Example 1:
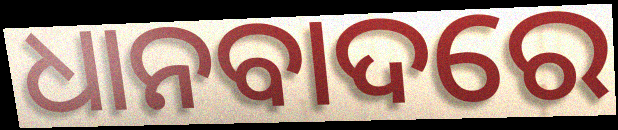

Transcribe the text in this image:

ଧାନବାଦରେ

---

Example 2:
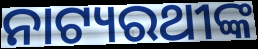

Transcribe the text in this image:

ନାଟ୍ୟରଥୀଙ୍କ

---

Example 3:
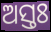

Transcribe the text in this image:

ଅସ୍ତଃ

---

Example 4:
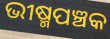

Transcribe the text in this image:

ଭୀଷ୍ମପଞ୍ଚକ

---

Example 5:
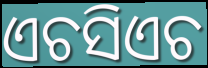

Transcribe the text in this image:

ଏଚସିଏଚ